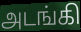
அடங்கி